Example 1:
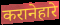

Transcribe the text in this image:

करानेहारे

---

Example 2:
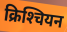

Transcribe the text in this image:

क्रिश्‍चियन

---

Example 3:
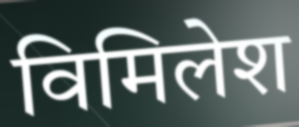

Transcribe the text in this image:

विमिलेश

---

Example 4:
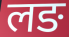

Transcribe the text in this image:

लङ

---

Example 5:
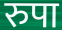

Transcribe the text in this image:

रुपा